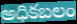
అధికబలం